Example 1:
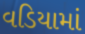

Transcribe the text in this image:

વડિયામાં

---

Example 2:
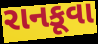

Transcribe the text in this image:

રાનકૂવા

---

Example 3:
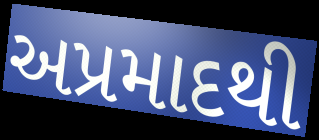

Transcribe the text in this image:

અપ્રમાદથી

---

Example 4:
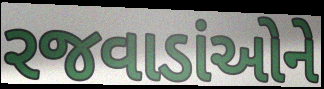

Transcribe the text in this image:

રજવાડાંઓને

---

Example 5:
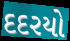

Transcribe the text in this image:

દદરયો